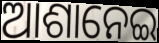
ଆଶାନେଇ